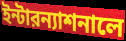
ইন্টারন্যাশনালে